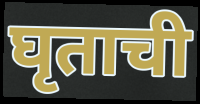
घृताची